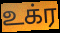
உக்ர